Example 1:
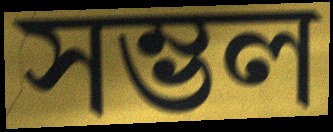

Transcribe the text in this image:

সম্ভল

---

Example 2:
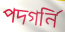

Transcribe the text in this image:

পদগর্নি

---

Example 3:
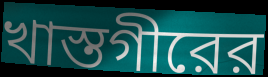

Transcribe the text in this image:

খাস্তগীরের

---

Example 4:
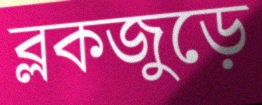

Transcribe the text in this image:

ব্লকজুড়ে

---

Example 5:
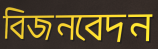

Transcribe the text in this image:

বিজনবেদন